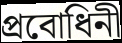
প্রবোধিনী